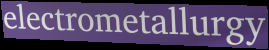
electrometallurgy